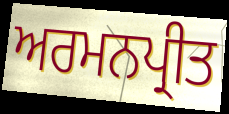
ਅਰਮਨਪ੍ਰੀਤ